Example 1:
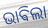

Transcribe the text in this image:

ଭାଵିଲା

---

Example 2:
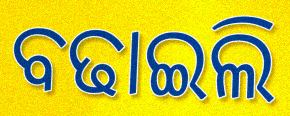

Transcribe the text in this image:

ବଢାଇଲି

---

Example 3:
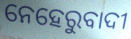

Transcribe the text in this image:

ନେହେରୁବାଦୀ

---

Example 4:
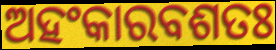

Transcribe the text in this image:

ଅହଂକାରବଶତଃ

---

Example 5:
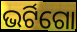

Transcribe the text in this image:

ଭର୍ଟିଗୋ